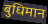
बुधिमान